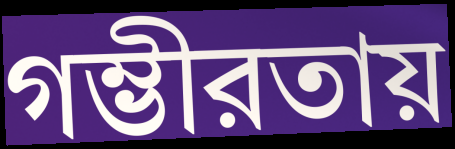
গম্ভীরতায়